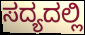
ಸದ್ಯದಲ್ಲಿ